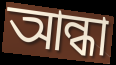
আন্ধা